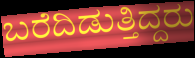
ಬರೆದಿಡುತ್ತಿದ್ದರು